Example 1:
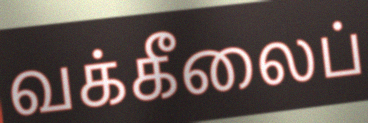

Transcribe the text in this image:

வக்கீலைப்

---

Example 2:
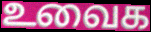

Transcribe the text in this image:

உவைக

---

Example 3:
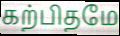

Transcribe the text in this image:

கற்பிதமே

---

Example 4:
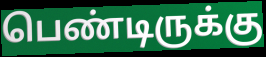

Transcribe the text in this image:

பெண்டிருக்கு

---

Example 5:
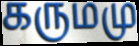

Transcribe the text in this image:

கருமமு